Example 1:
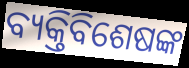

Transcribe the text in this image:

ବ୍ୟକ୍ତିବିଶେଷଙ୍କ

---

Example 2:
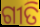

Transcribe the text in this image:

ଗୀତି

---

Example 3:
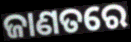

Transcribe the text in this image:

ଜାଣତରେ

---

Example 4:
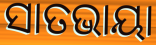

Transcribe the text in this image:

ସାତଭାୟା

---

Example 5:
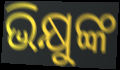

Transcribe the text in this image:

ଭିକ୍ଷୁଙ୍କ